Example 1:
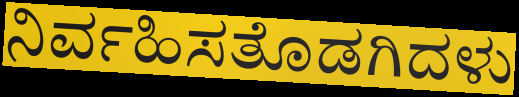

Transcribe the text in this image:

ನಿರ್ವಹಿಸತೊಡಗಿದಳು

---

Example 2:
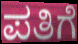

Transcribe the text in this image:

ಪತಿಗೆ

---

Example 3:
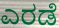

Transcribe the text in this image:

ಎರಡೆ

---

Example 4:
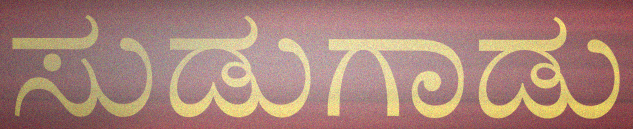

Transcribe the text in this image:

ಸುಡುಗಾಡು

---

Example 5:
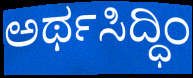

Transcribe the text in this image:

ಅರ್ಥಸಿದ್ಧಿಂ